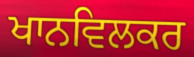
ਖਾਨਵਿਲਕਰ